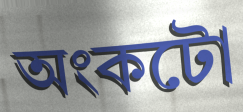
অংকটো